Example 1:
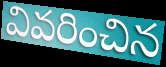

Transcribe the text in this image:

వివరించిన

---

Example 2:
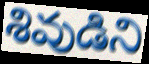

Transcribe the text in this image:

శివుడిని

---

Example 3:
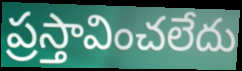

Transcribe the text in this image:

ప్రస్తావించలేదు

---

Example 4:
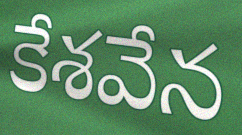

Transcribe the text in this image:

కేశవేన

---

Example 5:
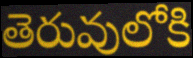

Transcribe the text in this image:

తెరువులోకి